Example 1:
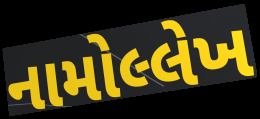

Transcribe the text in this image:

નામોલ્લેખ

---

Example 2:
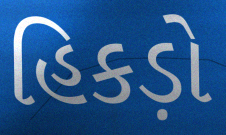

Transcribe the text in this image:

હિકડ઼ો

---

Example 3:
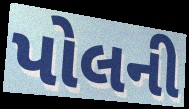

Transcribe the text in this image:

પોલની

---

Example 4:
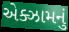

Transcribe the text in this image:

એક્ઝામનું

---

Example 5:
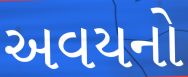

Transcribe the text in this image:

અવયનો